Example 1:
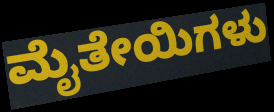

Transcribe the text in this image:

ಮೈತೇಯಿಗಳು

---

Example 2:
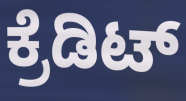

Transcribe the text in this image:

ಕ್ರೆಡಿಟ್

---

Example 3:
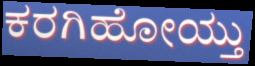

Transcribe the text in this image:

ಕರಗಿಹೋಯ್ತು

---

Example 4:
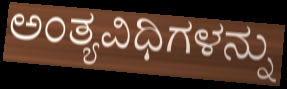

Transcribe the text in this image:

ಅಂತ್ಯವಿಧಿಗಳನ್ನು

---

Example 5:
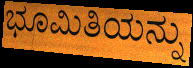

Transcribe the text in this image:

ಭೂಮಿತಿಯನ್ನು